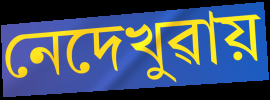
নেদেখুৱায়